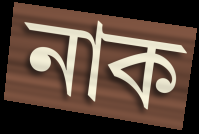
নাক